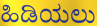
ಹಿಡಿಯಲು